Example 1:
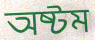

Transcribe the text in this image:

অষ্টম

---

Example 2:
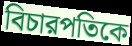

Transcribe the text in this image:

বিচারপতিকে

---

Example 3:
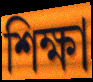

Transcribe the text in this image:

শিক্ষা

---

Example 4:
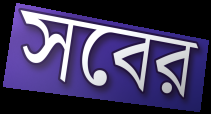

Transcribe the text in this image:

সবের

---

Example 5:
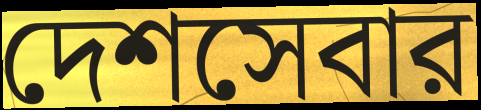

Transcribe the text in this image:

দেশসেবার